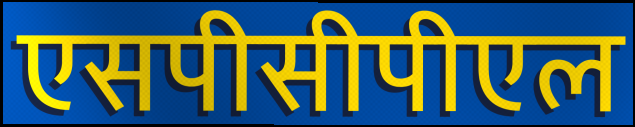
एसपीसीपीएल